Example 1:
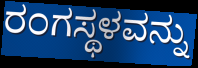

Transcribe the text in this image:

ರಂಗಸ್ಥಳವನ್ನು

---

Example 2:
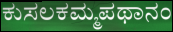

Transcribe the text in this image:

ಕುಸಲಕಮ್ಮಪಥಾನಂ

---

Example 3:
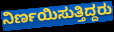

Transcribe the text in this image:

ನಿರ್ಣಯಿಸುತ್ತಿದ್ದರು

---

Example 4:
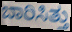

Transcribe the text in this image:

ಬಾರಿಸಿತ್ತು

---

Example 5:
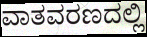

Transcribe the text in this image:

ವಾತವರಣದಲ್ಲಿ